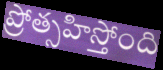
ప్రోత్సహిస్తోంది